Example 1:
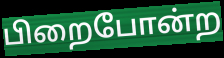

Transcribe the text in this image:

பிறைபோன்ற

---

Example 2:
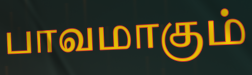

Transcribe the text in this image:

பாவமாகும்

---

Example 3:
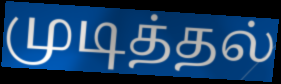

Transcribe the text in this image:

முடித்தல்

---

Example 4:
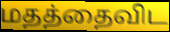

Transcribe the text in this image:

மதத்தைவிட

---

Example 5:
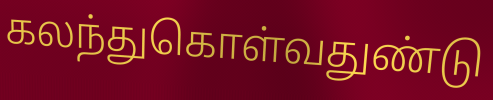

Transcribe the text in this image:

கலந்துகொள்வதுண்டு